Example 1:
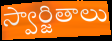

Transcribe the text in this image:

స్వార్జితాలు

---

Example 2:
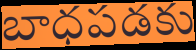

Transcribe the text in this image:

బాధపడకు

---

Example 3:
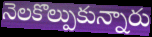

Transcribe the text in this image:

నెలకొల్పుకున్నారు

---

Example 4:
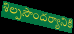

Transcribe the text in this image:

శిల్పసౌందర్యానికి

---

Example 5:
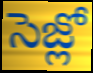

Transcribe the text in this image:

సెజ్లో